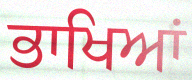
ਭਾਖਿਆਂ